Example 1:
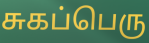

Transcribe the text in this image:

சுகப்பெரு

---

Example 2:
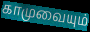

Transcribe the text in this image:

காமுவையும்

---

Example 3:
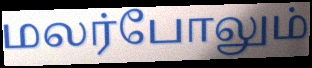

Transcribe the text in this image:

மலர்போலும்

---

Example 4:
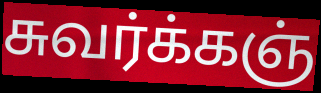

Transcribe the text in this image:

சுவர்க்கஞ்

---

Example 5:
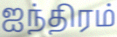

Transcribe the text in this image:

ஐந்திரம்